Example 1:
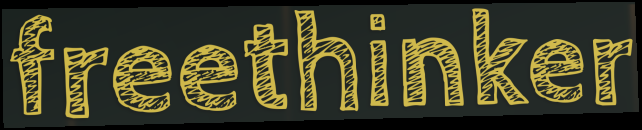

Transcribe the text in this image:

freethinker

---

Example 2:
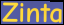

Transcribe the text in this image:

Zinta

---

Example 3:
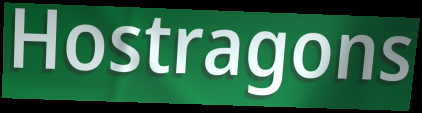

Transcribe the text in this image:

Hostragons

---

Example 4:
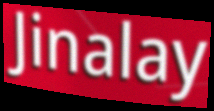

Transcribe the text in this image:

Jinalay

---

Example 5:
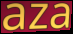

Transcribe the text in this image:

aza